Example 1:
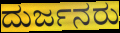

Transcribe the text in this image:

ದುರ್ಜನರು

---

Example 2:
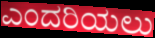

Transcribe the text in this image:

ಎಂದರಿಯಲು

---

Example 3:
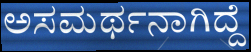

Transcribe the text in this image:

ಅಸಮರ್ಥನಾಗಿದ್ದೆ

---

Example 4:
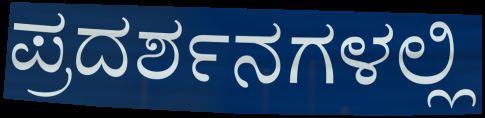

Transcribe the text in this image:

ಪ್ರದರ್ಶನಗಳಲ್ಲಿ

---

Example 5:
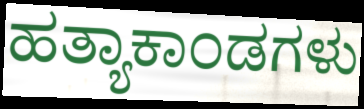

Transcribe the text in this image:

ಹತ್ಯಾಕಾಂಡಗಳು